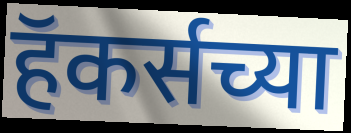
हॅकर्सच्या